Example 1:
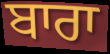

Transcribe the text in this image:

ਬਾਰਾ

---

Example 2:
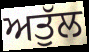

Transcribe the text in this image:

ਅਤੁੱਲ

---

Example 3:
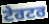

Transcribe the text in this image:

ਟੇਰਟਰ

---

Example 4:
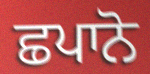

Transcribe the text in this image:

ਛਪਾਨੋ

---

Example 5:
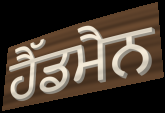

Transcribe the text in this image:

ਹੈੱਡਮੈਨ